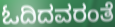
ಓದಿದವರಂತೆ